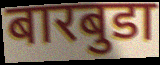
बारबुडा